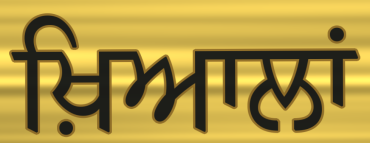
ਖ਼ਿਆਲਾਂ